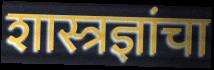
शास्त्रज्ञांचा